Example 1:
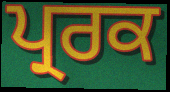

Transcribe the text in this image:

ਪ੍ਰਰਕ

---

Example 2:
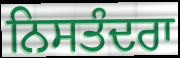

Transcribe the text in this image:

ਨਿਸਤੰਦਰਾ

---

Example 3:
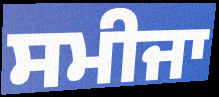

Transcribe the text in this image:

ਸਮੀਜਾ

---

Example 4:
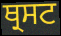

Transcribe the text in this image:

ਥ੍ਰਸਟ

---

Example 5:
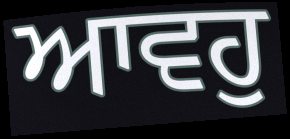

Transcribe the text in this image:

ਆਵਹੁ